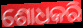
ଶୋଧକରି